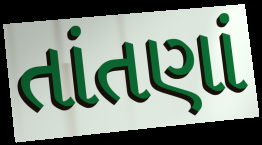
તાંતણાં